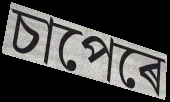
চাপেৰে